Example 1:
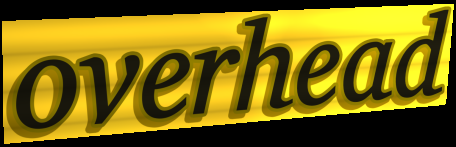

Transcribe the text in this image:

overhead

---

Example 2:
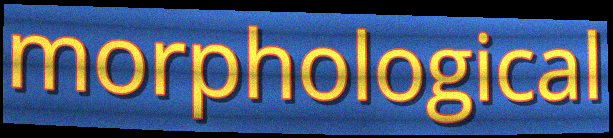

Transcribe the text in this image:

morphological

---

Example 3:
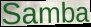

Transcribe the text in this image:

Samba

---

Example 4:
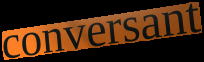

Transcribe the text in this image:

conversant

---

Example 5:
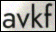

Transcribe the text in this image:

avkf